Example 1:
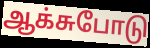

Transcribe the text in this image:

ஆக்சுபோடு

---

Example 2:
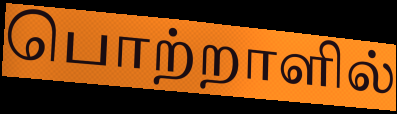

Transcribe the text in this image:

பொற்றாளில்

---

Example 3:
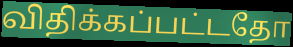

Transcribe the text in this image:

விதிக்கப்பட்டதோ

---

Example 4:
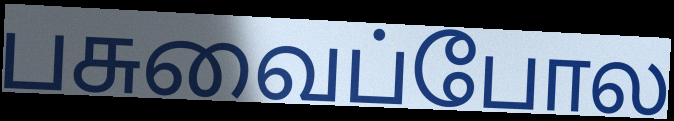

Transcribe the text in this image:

பசுவைப்போல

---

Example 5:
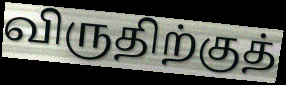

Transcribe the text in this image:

விருதிற்குத்